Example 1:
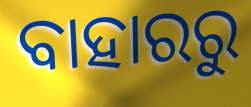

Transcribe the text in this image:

ବାହାରରୁ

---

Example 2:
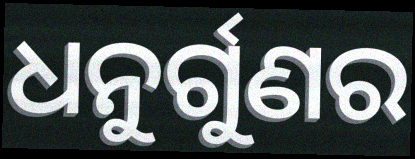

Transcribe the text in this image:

ଧନୁର୍ଗୁଣର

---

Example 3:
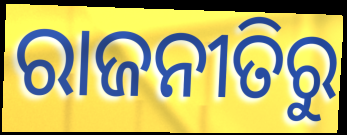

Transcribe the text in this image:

ରାଜନୀତିରୁ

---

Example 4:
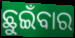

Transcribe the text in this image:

ଛୁଇଁବାର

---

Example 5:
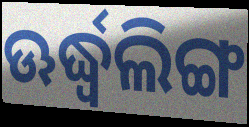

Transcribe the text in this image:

ଊର୍ଦ୍ଧ୍ୱଲିଙ୍ଗ